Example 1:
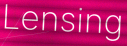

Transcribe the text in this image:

Lensing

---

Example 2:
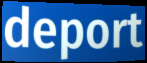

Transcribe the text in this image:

deport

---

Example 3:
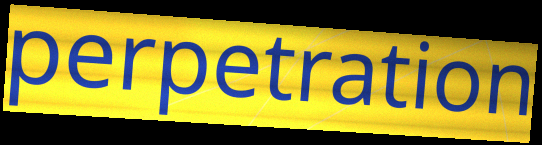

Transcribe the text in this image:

perpetration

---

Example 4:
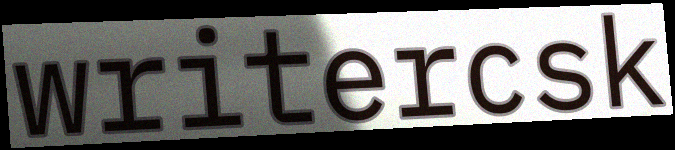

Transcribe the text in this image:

writercsk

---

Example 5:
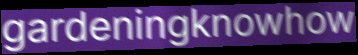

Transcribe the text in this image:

gardeningknowhow